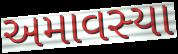
અમાવસ્યા